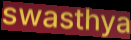
swasthya